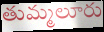
తుమ్మలూరు